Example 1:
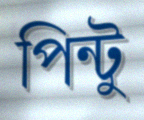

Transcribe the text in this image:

পিন্টু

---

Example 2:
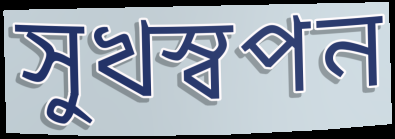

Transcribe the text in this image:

সুখস্বপন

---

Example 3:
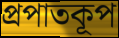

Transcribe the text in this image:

প্রপাতকূপ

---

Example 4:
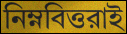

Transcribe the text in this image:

নিম্নবিত্তরাই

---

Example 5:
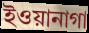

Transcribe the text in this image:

ইওয়ানাগা